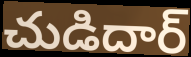
చుడిదార్